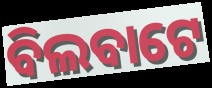
ବିଲବାଟେ